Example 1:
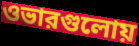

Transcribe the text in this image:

ওভারগুলোয়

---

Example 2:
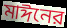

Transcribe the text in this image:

মাঈনের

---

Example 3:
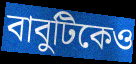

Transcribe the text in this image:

বাবুটিকেও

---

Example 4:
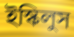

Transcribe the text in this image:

ইস্কিলুস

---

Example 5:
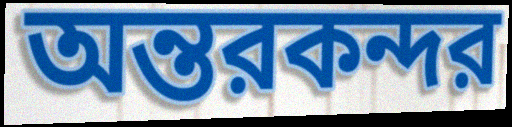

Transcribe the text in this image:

অন্তরকন্দর